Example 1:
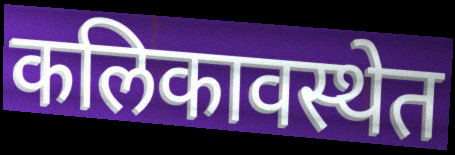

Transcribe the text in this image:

कलिकावस्थेत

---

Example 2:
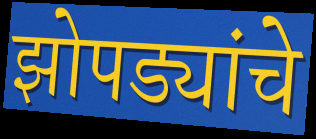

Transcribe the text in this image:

झोपड्यांचे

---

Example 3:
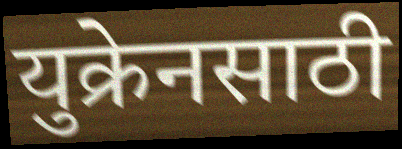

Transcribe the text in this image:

युक्रेनसाठी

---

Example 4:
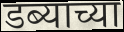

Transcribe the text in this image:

डब्याच्या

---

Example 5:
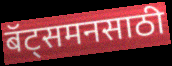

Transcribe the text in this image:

बॅट्समनसाठी